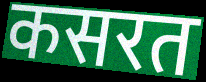
कसरत